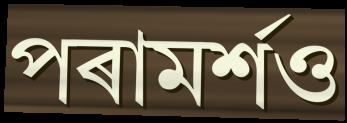
পৰামৰ্শও